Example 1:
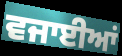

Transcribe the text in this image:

ਵਜਾਈਆਂ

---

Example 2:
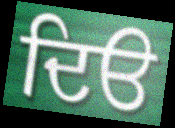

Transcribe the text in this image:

ਦਿੳ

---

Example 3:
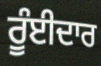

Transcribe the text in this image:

ਰੂੰਈਦਾਰ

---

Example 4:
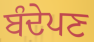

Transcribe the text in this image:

ਬੰਦੇਪਣ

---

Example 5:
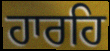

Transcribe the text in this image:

ਹਾਰਹਿ